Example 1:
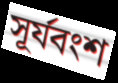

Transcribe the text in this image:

সূর্যবংশ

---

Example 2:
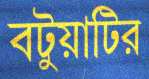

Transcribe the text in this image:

বটুয়াটির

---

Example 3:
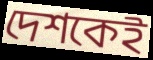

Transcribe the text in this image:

দেশকেই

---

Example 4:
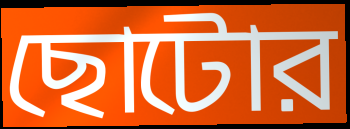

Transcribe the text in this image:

ছোটোর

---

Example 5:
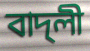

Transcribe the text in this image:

বাদ্‌লী